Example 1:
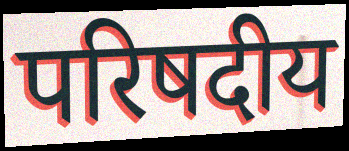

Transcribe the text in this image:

परिषदीय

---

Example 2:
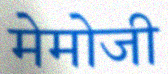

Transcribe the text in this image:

मेमोजी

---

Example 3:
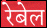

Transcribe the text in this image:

रेबेल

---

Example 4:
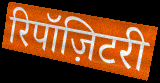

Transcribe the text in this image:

रिपॉज़िटरी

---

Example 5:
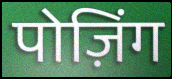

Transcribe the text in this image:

पोज़िंग